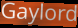
Gaylord